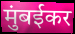
मुंबईकर